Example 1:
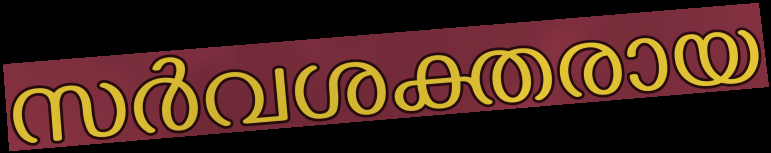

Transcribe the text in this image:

സർവശക്തരായ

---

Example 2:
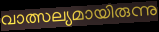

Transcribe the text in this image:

വാത്സല്യമായിരുന്നു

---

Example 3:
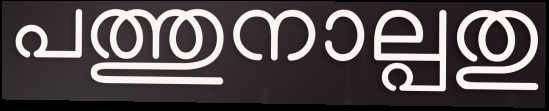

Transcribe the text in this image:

പത്തുനാല്പതു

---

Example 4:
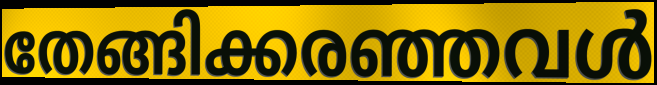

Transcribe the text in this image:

തേങ്ങിക്കരഞ്ഞവൾ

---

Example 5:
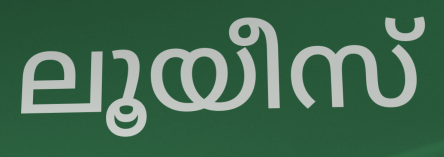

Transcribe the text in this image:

ലൂയീസ്